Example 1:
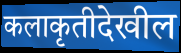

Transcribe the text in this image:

कलाकृतीदेखील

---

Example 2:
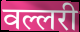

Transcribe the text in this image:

वल्लरी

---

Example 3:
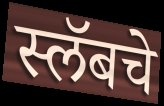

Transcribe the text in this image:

स्लॅबचे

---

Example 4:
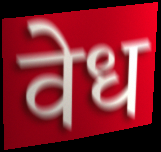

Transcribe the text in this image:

वेध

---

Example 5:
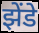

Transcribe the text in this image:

झेंडे